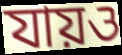
যায়ও